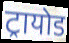
ट्रायोड